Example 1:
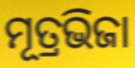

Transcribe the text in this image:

ମୂତ୍ରଭିଜା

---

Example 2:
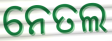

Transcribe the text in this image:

ନେତଲ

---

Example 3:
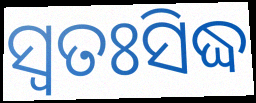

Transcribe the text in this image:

ସ୍ବତଃସିଦ୍ଧ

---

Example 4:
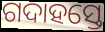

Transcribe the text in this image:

ଗଦାହସ୍ତେ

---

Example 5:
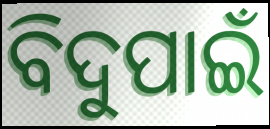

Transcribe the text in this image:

ବିଦୁପାଇଁ